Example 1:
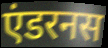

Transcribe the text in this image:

एंडरनस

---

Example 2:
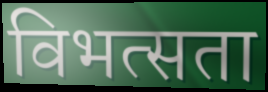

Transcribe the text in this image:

विभत्सता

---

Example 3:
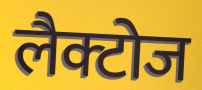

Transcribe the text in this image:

लैक्‍टोज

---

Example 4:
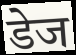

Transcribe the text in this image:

डेज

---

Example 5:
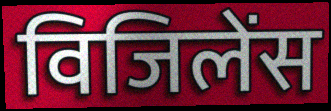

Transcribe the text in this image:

विजिलेंस